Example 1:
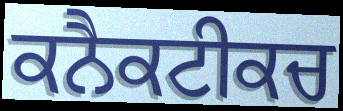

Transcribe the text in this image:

ਕਨੈਕਟੀਕਚ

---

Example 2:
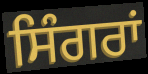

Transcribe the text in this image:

ਸਿੰਗਰਾਂ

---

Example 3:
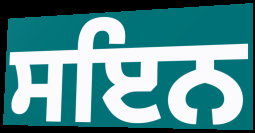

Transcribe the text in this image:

ਸਇਨ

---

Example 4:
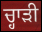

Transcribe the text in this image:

ਚ੍ਹਾੜੀ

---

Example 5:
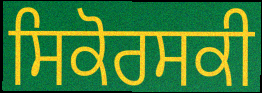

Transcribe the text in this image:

ਸਿਕੋਰਸਕੀ